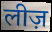
लीज़